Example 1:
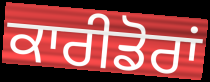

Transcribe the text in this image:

ਕਾਰੀਡੋਰਾਂ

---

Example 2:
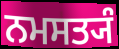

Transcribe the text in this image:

ਨਮਸਤ੍ਯੰ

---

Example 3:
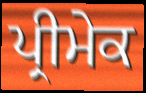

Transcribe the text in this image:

ਪ੍ਰੀਮੇਕ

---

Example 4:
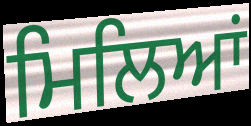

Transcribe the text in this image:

ਮਿਲਿਆਂ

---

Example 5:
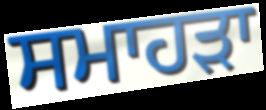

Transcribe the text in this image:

ਸਮਾਹੜਾ